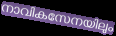
നാവികസേനയിലും